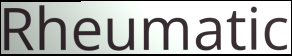
Rheumatic